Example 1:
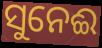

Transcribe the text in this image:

ସୁନେଈ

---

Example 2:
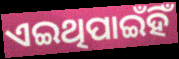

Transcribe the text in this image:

ଏଇଥିପାଇଁହିଁ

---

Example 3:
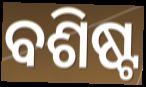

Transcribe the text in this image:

ବଶିଷ୍ଟ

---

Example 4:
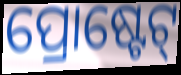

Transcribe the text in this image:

ପ୍ରୋଷ୍ଟେଟ୍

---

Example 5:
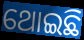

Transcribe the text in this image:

ଥୋଇଛି